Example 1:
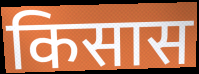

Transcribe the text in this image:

किसास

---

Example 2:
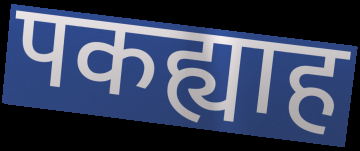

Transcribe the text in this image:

पकह्याह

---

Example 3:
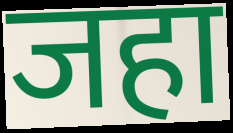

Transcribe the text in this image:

जहा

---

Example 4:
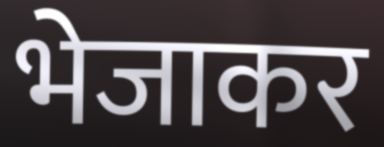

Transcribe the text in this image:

भेजाकर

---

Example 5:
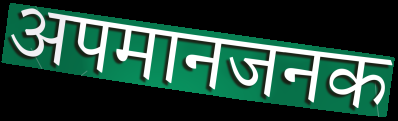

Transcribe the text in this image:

अपमानजनक